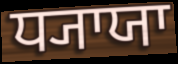
ਧ੍ਯਾਯਾ